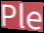
Ple